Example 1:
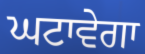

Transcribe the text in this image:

ਘਟਾਵੇਗਾ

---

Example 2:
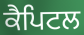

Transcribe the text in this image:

ਕੈਪਿਟਲ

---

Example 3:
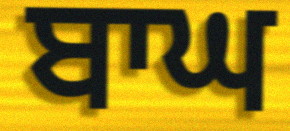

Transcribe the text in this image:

ਬਾਘ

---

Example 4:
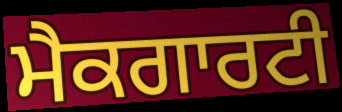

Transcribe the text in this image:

ਮੈਕਗਾਰਟੀ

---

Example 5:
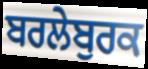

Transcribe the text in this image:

ਬਰਲੇਬੁਰਕ